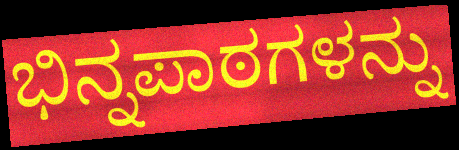
ಭಿನ್ನಪಾಠಗಳನ್ನು